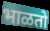
भाळतो